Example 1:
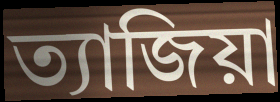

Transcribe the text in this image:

ত্যাজিয়া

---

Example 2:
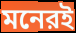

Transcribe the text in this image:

মনেরই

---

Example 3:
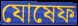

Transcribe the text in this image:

যোষেফ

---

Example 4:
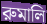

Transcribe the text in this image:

রুমালি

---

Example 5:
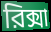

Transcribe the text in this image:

রিক্সা